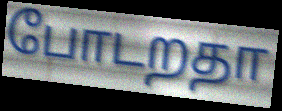
போடறதா